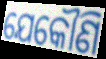
ଯେକୌଣି